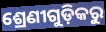
ଶ୍ରେଣୀଗୁଡ଼ିକରୁ